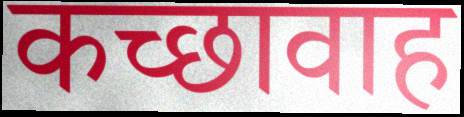
कच्छावाह